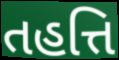
તહત્તિ